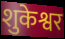
शुकेश्वर